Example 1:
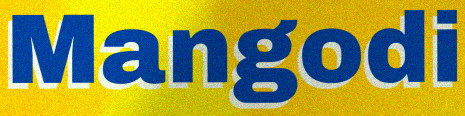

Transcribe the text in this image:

Mangodi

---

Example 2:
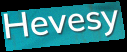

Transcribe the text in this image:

Hevesy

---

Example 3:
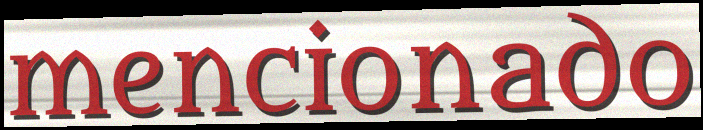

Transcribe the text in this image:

mencionado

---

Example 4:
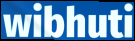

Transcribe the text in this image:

wibhuti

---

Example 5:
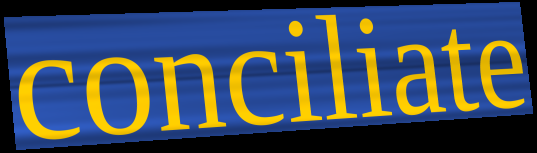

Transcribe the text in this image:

conciliate